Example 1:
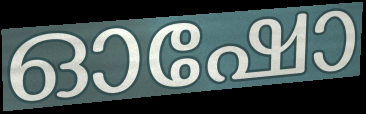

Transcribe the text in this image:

ഓഷോ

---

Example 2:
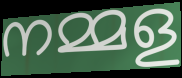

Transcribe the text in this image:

നമ്മള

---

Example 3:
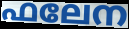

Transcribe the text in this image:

ഫലേന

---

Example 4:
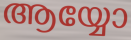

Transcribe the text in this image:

ആയ്യോ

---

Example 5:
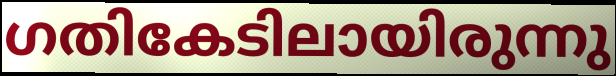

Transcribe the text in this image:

ഗതികേടിലായിരുന്നു